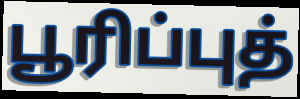
பூரிப்புத்